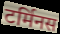
टर्मिनस